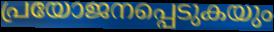
പ്രയോജനപ്പെടുകയും